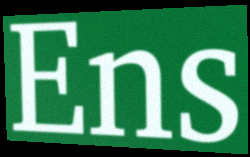
Ens